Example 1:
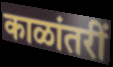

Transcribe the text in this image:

काळांतरीं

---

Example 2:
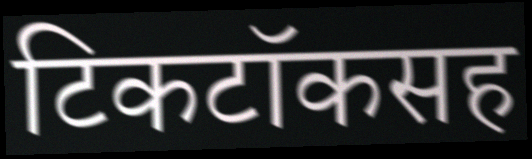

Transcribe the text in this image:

टिकटॉकसह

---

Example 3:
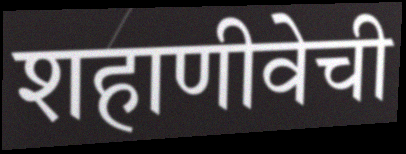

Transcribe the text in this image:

शहाणीवेची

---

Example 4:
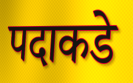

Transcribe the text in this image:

पदाकडे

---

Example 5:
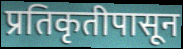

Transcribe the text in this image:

प्रतिकृतीपासून